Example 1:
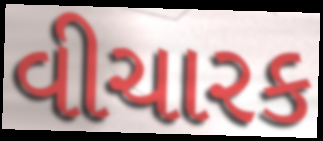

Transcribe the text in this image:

વીચારક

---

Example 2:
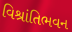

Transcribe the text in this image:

વિશ્રાંતિભવન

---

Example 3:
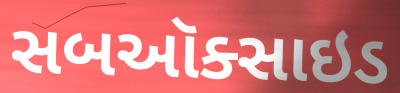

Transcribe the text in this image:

સબઑક્સાઇડ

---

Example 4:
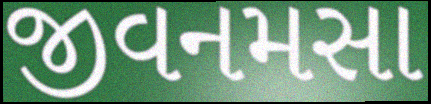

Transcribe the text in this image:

જીવનમસા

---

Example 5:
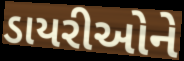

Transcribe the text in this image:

ડાયરીઓને